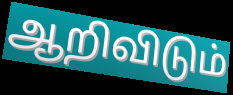
ஆறிவிடும்